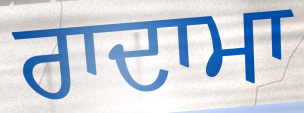
ਰਾਦਾਮਾ